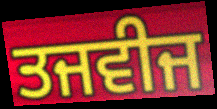
ਤਜਵੀਜ